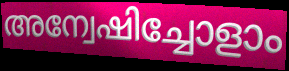
അന്വേഷിച്ചോളാം